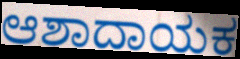
ಆಶಾದಾಯಕ